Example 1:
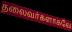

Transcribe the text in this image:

தலைவர்களாகவே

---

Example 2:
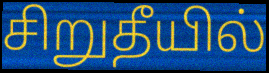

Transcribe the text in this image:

சிறுதீயில்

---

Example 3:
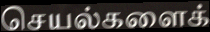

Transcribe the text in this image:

செயல்களைக்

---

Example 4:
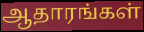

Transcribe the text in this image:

ஆதாரங்கள்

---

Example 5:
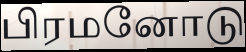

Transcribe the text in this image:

பிரமனோடு